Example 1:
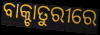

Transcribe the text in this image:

ବାକ୍ଚାତୁରୀରେ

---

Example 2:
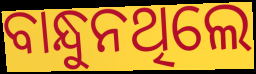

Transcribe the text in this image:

ବାନ୍ଧୁନଥିଲେ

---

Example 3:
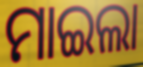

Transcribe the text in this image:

ମାଇଲା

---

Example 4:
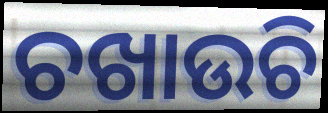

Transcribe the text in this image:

ଚଖାଉଚି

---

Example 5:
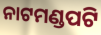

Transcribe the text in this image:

ନାଟମଣ୍ଡପଟି